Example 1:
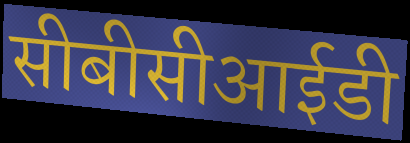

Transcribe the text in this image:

सीबीसीआईडी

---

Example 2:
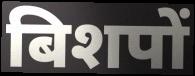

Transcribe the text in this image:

बिशपों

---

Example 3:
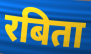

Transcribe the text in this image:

रबिता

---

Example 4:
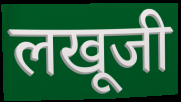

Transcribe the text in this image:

लखूजी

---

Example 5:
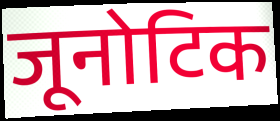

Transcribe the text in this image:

जूनोटिक